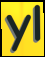
yl